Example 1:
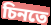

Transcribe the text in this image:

চিনতে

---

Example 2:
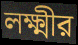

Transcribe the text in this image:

লক্ষ্মীর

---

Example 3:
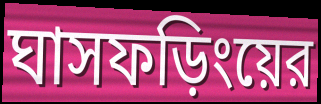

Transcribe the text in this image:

ঘাসফড়িংয়ের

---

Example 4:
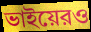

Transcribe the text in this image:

ভাইয়েরও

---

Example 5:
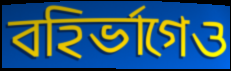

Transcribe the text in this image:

বহির্ভাগেও